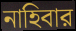
নাহিবার